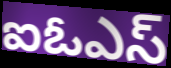
ఐఓఎస్